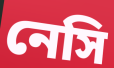
নেসি